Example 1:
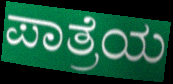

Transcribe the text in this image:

ಪಾತ್ರೆಯ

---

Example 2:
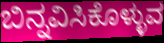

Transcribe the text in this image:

ಬಿನ್ನವಿಸಿಕೊಳ್ಳುವ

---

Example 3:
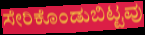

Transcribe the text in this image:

ಸೇರಿಕೊಂಡುಬಿಟ್ಟವು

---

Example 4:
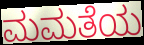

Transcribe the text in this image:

ಮಮತೆಯ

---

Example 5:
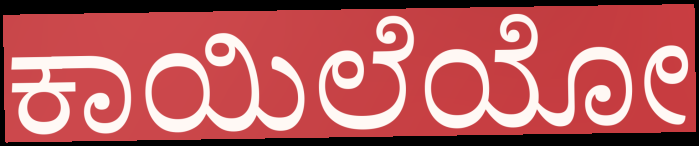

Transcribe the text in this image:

ಕಾಯಿಲೆಯೋ